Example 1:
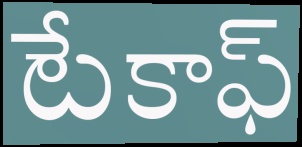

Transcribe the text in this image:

టేకాఫ్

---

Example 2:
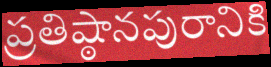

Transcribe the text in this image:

ప్రతిష్ఠానపురానికి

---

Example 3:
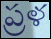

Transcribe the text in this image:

ప్రళ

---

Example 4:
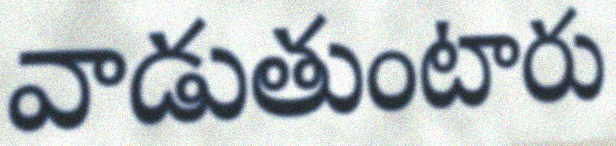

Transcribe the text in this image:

వాడుతుంటారు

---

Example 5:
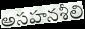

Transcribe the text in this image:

అసహనశీలి